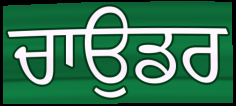
ਚਾਉਡਰ